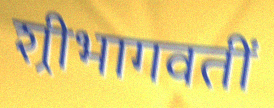
श्रीभागवतीं